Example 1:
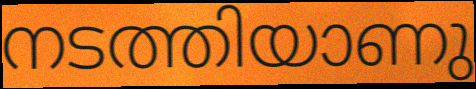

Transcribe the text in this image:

നടത്തിയാണു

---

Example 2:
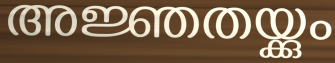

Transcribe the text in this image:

അജ്ഞതയ്ക്കും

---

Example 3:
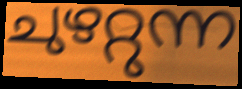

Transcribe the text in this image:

ചുഴറ്റുന്ന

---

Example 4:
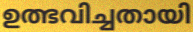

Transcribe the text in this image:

ഉത്ഭവിച്ചതായി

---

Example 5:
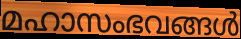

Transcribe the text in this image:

മഹാസംഭവങ്ങൾ